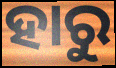
ହାରୁ